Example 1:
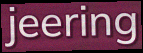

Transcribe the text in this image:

jeering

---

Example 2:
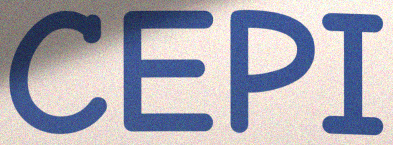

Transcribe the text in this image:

CEPI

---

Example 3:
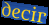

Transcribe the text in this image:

decir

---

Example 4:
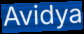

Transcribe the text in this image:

Avidya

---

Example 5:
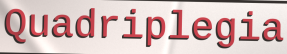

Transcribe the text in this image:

Quadriplegia